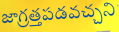
జాగ్రత్తపడవచ్చని